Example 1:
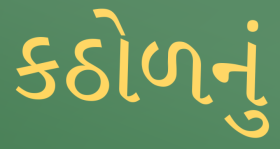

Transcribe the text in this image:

કઠોળનું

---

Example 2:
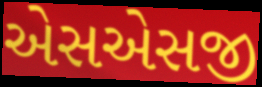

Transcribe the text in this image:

એસએસજી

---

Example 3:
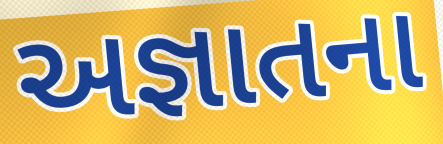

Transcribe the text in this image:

અજ્ઞાતના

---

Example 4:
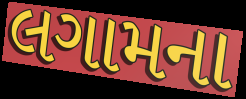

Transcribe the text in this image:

લગામના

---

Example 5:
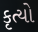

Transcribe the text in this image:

કૃત્યો